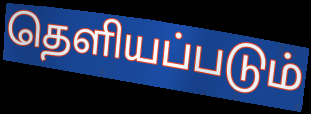
தெளியப்படும்